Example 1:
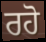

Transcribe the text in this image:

ਰਹੋ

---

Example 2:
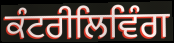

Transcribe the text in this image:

ਕੰਟਰੀਲਿਵਿੰਗ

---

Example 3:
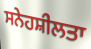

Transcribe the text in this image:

ਸਨੇਹਸ਼ੀਲਤਾ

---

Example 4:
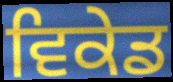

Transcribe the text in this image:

ਵਿਕੇਡ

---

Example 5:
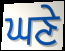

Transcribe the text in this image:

ਘਣੇ